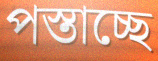
পস্তাচ্ছে